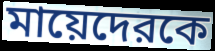
মায়েদেরকে